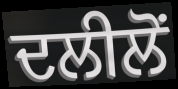
ਦਲੀਲੋਂ